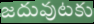
జదువుటకు